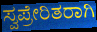
ಸ್ವಪ್ರೇರಿತರಾಗಿ